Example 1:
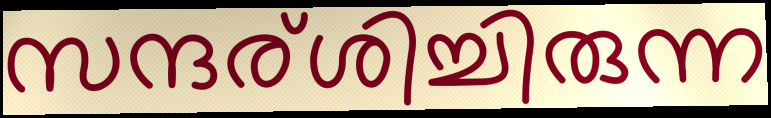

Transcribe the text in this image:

സന്ദര്ശിച്ചിരുന്ന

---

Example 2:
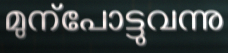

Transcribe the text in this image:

മുന്പോട്ടുവന്നു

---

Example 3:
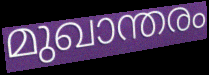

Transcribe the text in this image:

മുഖാന്തരം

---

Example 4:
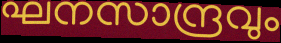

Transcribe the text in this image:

ഘനസാന്ദ്രവും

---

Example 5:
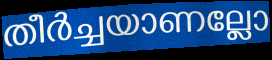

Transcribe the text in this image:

തീർച്ചയാണല്ലോ